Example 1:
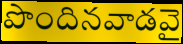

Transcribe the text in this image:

పొందినవాడవై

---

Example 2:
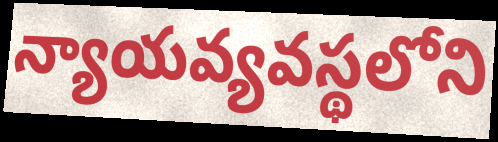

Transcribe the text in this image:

న్యాయవ్యవస్థలోని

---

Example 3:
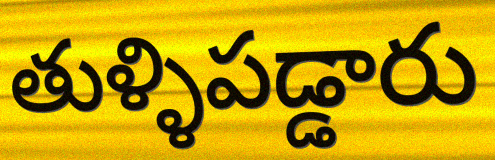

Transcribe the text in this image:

తుళ్ళిపడ్డారు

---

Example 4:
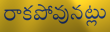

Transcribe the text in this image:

రాకపోవునట్లు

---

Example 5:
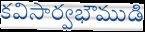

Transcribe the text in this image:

కవిసార్వభౌముడి